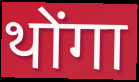
थोंगा